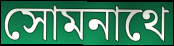
সোমনাথে